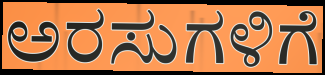
ಅರಸುಗಳಿಗೆ